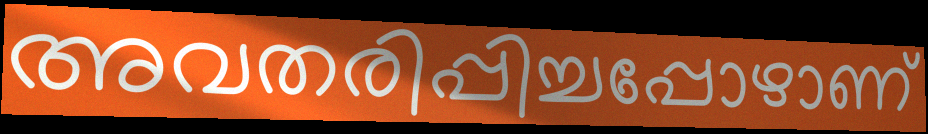
അവതരിപ്പിച്ചപ്പോഴാണ്